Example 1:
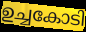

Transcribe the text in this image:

ഉച്ചകോടി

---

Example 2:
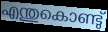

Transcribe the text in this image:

എന്തുകൊണ്ടു്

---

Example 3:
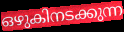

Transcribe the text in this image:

ഒഴുകിനടക്കുന്ന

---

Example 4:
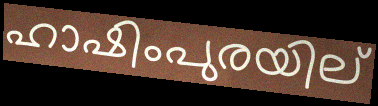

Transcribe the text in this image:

ഹാഷിംപുരയില്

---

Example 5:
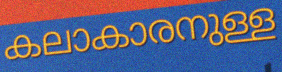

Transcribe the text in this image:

കലാകാരനുള്ള